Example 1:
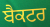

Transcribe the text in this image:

ਬੈਕਟਰ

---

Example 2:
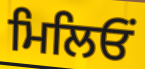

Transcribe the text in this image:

ਮਿਲਿਓਂ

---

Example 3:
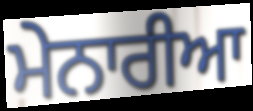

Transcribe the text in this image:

ਮੇਨਾਰੀਆ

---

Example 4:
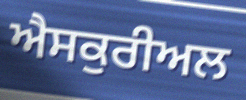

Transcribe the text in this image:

ਐਸਕੁਰੀਅਲ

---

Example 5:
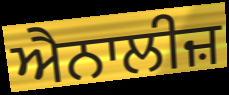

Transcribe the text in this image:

ਐਨਾਲੀਜ਼